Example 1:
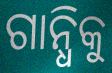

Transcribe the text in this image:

ଗାନ୍ଧିକୁ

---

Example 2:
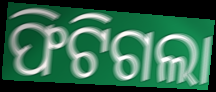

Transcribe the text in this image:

ଫିଟିଗଲା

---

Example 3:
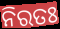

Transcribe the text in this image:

ନିରତଃ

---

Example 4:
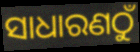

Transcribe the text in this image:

ସାଧାରଣଠୁଁ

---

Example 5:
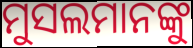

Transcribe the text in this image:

ମୁସଲମାନଙ୍କୁ